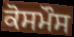
ਕੋਸਮੌਸ